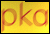
pka